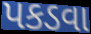
પકડવા